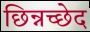
छिन्नच्छेद